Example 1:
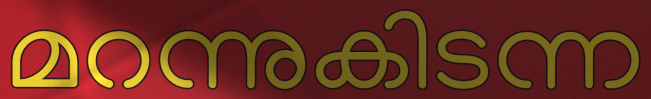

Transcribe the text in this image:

മറന്നുകിടന്ന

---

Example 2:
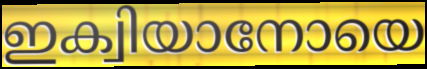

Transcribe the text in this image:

ഇക്വിയാനോയെ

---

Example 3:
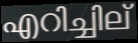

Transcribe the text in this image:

എറിച്ചില്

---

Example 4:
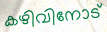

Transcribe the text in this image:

കഴിവിനോട്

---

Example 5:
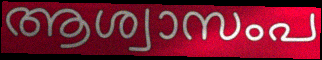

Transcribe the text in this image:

ആശ്വാസംപ